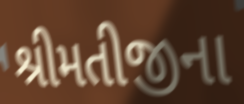
શ્રીમતીજીના